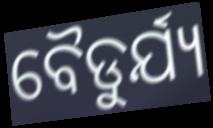
ବୈଡୁର୍ଯ୍ୟ